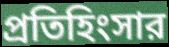
প্রতিহিংসার